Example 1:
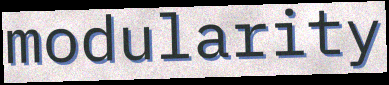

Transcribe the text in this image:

modularity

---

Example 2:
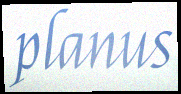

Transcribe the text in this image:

planus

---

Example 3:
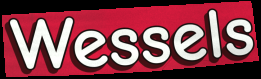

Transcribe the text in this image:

Wessels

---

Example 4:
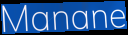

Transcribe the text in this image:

Manane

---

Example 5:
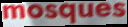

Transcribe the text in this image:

mosques